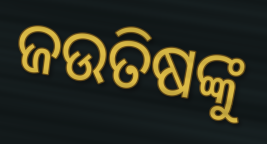
ଜଉତିଷଙ୍କୁ